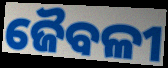
ଜୈବଳୀ